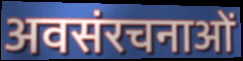
अवसंरचनाओं